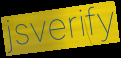
jsverify